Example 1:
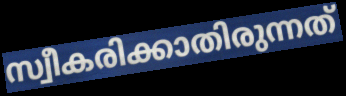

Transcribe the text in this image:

സ്വീകരിക്കാതിരുന്നത്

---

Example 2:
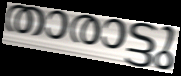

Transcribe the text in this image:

താരാട്ടു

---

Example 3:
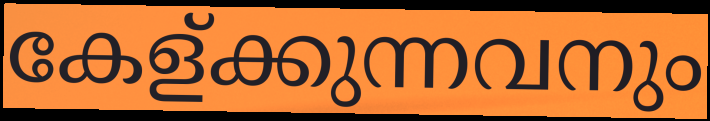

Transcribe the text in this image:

കേള്ക്കുന്നവനും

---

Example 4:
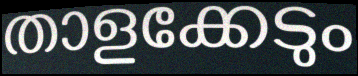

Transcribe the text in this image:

താളക്കേടും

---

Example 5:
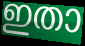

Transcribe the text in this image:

ഇതാ